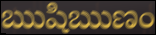
ఋషిఋణం